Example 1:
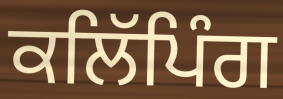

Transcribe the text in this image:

ਕਲਿੱਪਿੰਗ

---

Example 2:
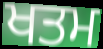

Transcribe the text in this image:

ਖਤਮ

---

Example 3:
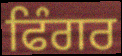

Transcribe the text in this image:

ਫਿੰਗਰ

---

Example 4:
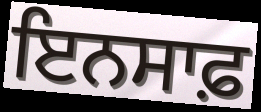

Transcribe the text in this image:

ਇਨਸਾਫ਼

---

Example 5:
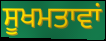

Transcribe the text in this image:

ਸੂਖਮਤਾਵਾਂ